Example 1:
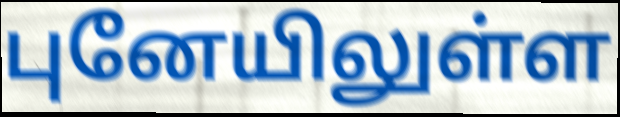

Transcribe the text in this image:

புனேயிலுள்ள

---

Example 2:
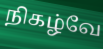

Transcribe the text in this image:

நிகழ்வே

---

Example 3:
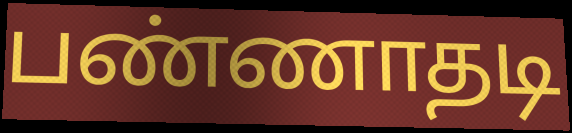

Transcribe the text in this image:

பண்ணாதடி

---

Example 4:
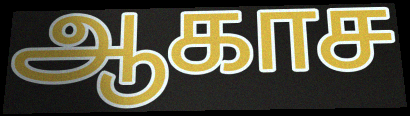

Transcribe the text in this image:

ஆகாச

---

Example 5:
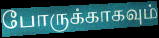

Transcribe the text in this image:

போருக்காகவும்